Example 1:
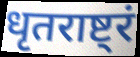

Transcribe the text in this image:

धृतराष्ट्रं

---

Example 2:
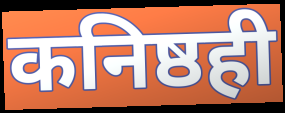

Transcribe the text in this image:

कनिष्ठही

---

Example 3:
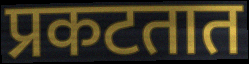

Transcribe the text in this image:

प्रकटतात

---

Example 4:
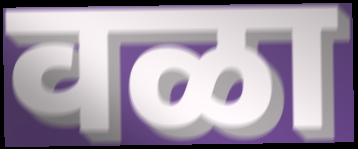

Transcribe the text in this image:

वळा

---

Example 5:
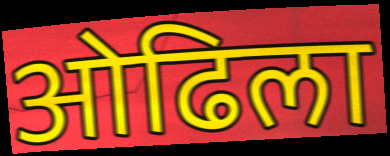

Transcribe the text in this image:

ओढिला